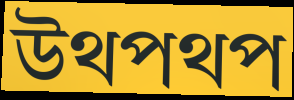
উথপথপ